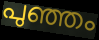
പുഞ്ഞം